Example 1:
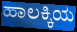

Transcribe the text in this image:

ಹಾಲಕ್ಕಿಯ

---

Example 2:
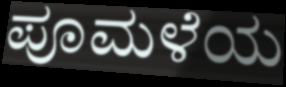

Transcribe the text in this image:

ಪೂಮಳೆಯ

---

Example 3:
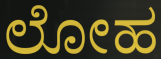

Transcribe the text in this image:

ಲೋಹ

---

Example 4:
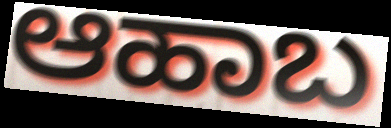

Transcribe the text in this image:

ಆಹಾಬ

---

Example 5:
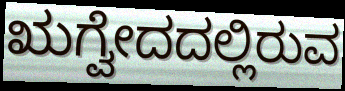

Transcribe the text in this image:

ಋಗ್ವೇದದಲ್ಲಿರುವ